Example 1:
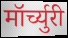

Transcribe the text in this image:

मॉर्च्युरी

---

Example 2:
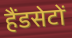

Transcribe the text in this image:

हैंडसेटों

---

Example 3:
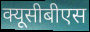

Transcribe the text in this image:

क्यूसीबीएस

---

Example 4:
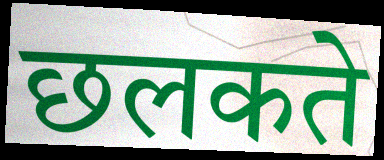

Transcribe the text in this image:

छलकते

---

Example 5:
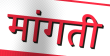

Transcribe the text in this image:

मांगती